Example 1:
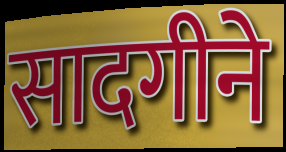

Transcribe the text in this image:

सादगीने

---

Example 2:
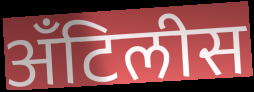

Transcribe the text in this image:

अँटिलीस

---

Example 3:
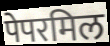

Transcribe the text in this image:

पेपरमिल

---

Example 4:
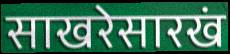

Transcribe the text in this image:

साखरेसारखं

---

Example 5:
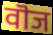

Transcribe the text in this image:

वॊज